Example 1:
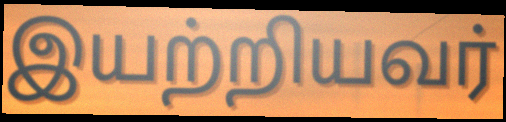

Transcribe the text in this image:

இயற்றியவர்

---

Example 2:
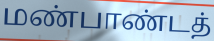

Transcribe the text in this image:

மண்பாண்டத்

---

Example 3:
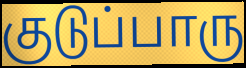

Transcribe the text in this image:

குடுப்பாரு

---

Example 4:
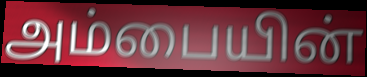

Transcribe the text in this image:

அம்பையின்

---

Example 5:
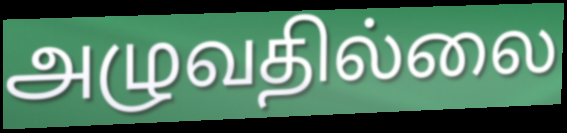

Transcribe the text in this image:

அழுவதில்லை